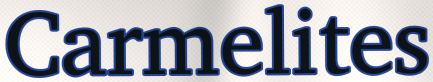
Carmelites